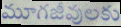
మూగజీవులకు